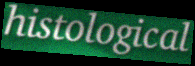
histological